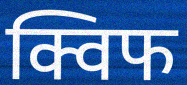
क्विफ